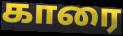
காரை